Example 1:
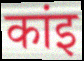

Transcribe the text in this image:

कांइ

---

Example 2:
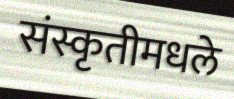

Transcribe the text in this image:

संस्कृतीमधले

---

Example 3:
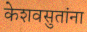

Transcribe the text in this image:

केशवसुतांना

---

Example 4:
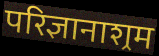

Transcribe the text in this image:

परिज्ञानाश्रम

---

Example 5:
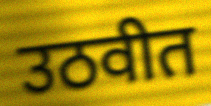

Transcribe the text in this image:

उठवीत